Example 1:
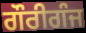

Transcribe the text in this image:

ਗੌਰੀਗੰਜ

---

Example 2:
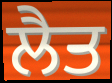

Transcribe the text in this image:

ਲੈਤ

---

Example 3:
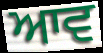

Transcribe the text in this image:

ਆਵ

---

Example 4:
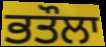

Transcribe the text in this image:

ਭਤੌਲਾ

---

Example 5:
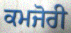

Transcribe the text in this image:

ਕਮਜੋਰੀ